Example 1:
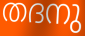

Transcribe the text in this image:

തദനു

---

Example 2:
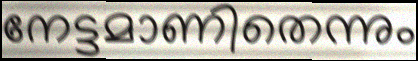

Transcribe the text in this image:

നേട്ടമാണിതെന്നും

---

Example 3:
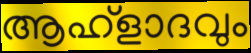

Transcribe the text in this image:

ആഹ്ളാദവും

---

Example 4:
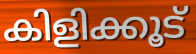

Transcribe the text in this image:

കിളിക്കൂട്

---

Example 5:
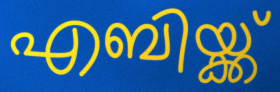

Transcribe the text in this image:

എബിയ്ക്ക്